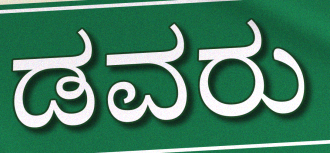
ಡವರು